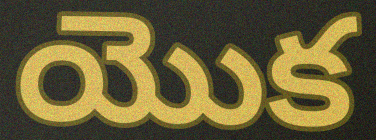
యొక